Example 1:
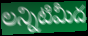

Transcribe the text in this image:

లన్నిటిమీద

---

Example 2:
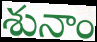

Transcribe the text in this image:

శునాం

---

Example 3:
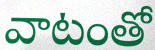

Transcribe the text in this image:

వాటంతో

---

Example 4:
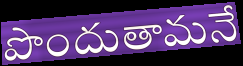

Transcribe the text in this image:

పొందుతామనే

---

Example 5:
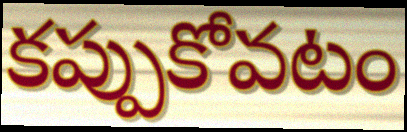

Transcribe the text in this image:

కప్పుకోవటం